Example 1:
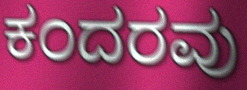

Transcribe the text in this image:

ಕಂದರವು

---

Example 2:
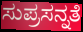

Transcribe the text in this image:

ಸುಪ್ರಸನ್ನತೆ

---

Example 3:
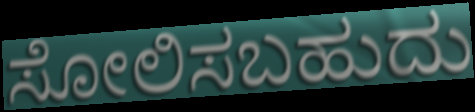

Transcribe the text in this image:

ಸೋಲಿಸಬಹುದು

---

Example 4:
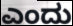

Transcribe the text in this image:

ಎಂದು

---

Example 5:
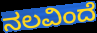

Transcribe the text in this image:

ನಲವಿಂದೆ